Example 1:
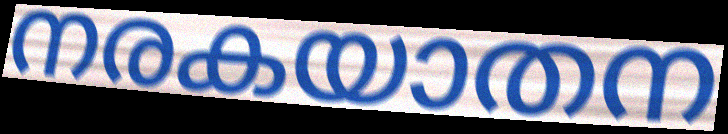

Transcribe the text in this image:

നരകയാതന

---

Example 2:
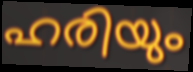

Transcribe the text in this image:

ഹരിയും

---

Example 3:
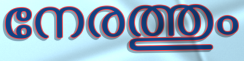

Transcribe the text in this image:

നേരത്തും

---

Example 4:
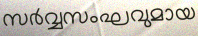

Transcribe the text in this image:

സർവ്വസംഘവുമായ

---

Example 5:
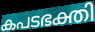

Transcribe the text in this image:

കപടഭക്തി